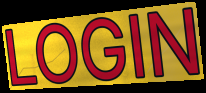
LOGIN